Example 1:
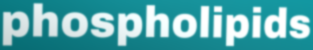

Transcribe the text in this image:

phospholipids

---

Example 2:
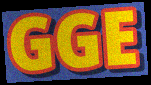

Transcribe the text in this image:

GGE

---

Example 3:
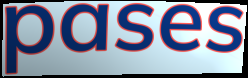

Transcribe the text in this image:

pases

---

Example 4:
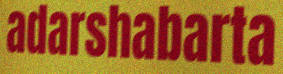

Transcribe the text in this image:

adarshabarta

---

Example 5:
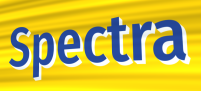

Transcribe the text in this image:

Spectra